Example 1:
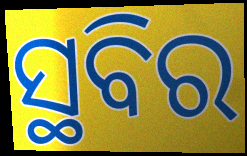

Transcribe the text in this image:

ସ୍ଥବିର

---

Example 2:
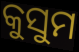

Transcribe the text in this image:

କୁସୁମ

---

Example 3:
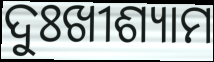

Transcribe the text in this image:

ଦୁଃଖୀଶ୍ୟାମ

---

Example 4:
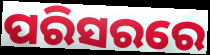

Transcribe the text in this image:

ପରିସରରେ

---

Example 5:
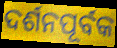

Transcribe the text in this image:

ଦର୍ଶନପୂର୍ବକ